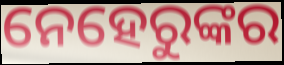
ନେହେରୁଙ୍କର